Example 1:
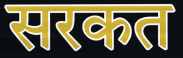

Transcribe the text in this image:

सरकत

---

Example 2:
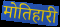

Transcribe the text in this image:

मोतिहारी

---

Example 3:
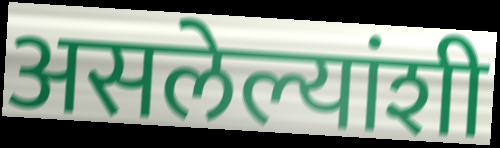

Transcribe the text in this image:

असलेल्यांशी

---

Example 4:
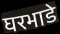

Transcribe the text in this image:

घरभाडे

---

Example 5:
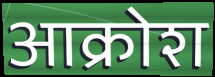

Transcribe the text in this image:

आक्रोश